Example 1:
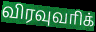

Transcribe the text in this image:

விரவுவரிக்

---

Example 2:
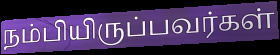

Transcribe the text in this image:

நம்பியிருப்பவர்கள்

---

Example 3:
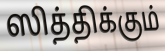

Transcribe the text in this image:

ஸித்திக்கும்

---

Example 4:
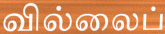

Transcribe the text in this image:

வில்லைப்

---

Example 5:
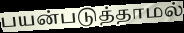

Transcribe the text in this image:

பயன்படுத்தாமல்